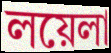
লয়েলা